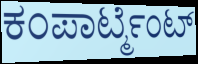
ಕಂಪಾರ್ಟ್ಮೆಂಟ್